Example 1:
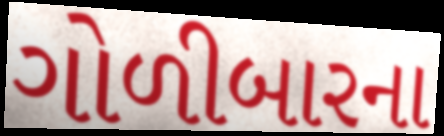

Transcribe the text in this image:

ગોળીબારના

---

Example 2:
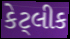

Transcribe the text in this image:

કેટ્લીક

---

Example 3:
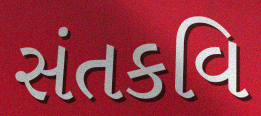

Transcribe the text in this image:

સંતકવિ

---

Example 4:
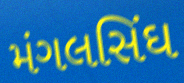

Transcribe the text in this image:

મંગલસિંઘ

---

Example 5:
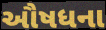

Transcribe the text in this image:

ઔષધના